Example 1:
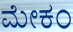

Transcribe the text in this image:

ಮೇಕಂ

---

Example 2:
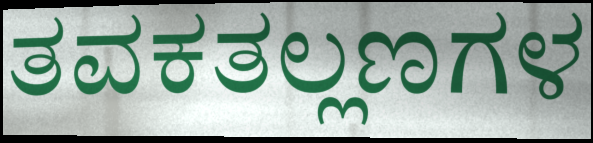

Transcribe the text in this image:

ತವಕತಲ್ಲಣಗಳ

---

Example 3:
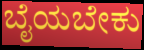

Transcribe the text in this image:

ಬೈಯಬೇಕು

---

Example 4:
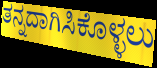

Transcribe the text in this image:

ತನ್ನದಾಗಿಸಿಕೊಳ್ಳಲು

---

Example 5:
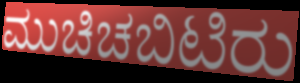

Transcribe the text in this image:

ಮುಚಿಚಬಿಟಿರು